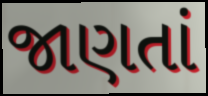
જાણતાં